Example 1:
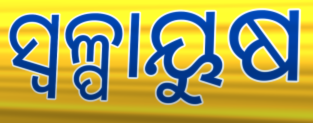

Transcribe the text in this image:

ସ୍ୱଳ୍ପାୟୁଷ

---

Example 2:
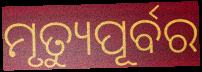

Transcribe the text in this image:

ମୃତ୍ୟୁପୂର୍ବର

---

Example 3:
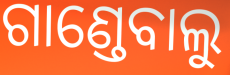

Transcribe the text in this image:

ଗାଣ୍ଡେବାଲୁ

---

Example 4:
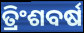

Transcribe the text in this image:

ତ୍ରିଂଶବର୍ଷ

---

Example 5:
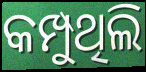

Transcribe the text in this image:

କମ୍ପୁଥିଲି